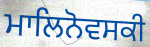
ਮਾਲਿਨੋਵਸਕੀ